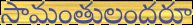
సామంతులందరూ